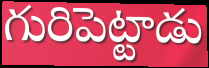
గురిపెట్టాడు